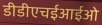
डीडीएचईआईओ